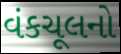
વંકચૂલનો